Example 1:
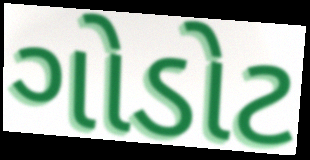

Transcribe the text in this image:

ગોડોટ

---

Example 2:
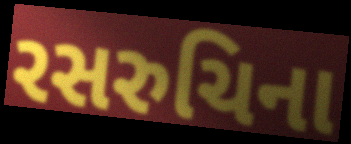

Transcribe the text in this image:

રસરુચિના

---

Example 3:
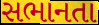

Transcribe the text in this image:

સભાનતા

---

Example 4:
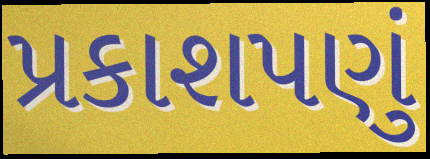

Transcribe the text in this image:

પ્રકાશપણું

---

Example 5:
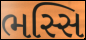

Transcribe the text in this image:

ભસ્સિ